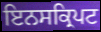
ਇਨਸਕ੍ਰਿਪਟ